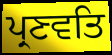
ਪ੍ਰਣਵਤਿ